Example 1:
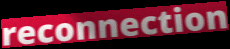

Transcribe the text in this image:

reconnection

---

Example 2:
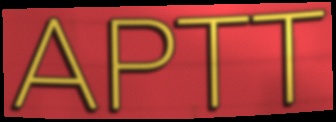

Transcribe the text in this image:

APTT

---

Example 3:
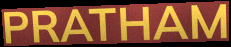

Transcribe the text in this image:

PRATHAM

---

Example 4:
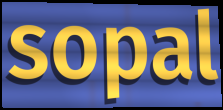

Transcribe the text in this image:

sopal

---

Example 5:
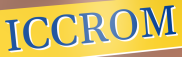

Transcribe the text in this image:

ICCROM